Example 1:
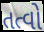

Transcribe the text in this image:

તત્વો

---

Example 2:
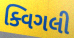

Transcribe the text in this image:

ક્વિગલી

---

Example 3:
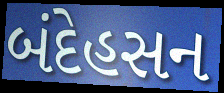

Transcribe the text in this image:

બંદેહસન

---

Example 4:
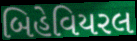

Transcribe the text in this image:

બિહેવિયરલ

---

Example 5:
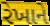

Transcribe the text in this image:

રેખાને